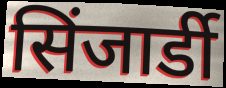
सिंजार्डी